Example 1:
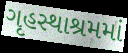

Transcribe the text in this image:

ગૃહસ્થાશ્રમમાં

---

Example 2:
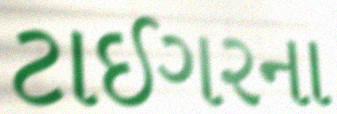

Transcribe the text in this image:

ટાઈગરના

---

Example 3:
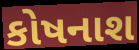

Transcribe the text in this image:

કોષનાશ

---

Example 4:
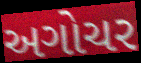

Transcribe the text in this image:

અગોચર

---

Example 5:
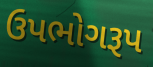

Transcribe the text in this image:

ઉપભોગરૂપ